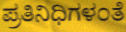
ಪ್ರತಿನಿಧಿಗಳಂತೆ